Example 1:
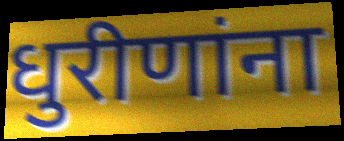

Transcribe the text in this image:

धुरीणांना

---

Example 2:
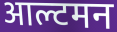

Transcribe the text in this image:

आल्टमन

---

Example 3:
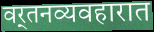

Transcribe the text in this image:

वर्तनव्यवहारात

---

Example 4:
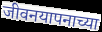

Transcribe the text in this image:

जीवनयापनाच्या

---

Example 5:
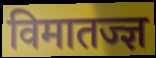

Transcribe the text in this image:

विमातज्ज्ञ